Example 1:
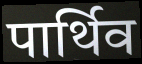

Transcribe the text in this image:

पार्थिव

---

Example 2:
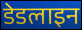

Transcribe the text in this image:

डेडलाइन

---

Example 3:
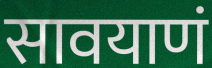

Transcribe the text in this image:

सावयाणं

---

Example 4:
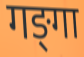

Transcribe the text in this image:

गङ्गा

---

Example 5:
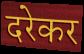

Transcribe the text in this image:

दरेकर